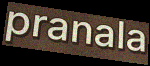
pranala